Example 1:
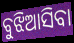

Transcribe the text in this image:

ବୁଝିଆସିବା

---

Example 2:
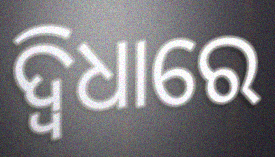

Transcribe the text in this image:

ଦ୍ୱିଧାରେ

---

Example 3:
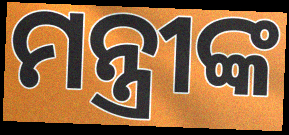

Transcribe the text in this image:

ମନ୍ତ୍ରୀଙ୍କ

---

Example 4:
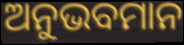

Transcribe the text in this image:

ଅନୁଭବମାନ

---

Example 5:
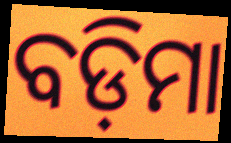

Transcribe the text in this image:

ବଡ଼ିମା